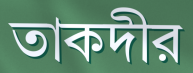
তাকদীর